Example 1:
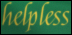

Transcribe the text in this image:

helpless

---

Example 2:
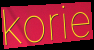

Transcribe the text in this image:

korie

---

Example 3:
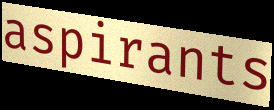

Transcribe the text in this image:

aspirants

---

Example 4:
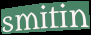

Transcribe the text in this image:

smitin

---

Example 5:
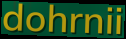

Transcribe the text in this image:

dohrnii